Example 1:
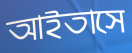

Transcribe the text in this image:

আইতাসে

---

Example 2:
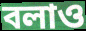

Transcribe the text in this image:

বলাও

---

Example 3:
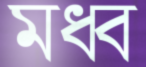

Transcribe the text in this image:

মধ্ব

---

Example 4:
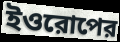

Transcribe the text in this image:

ইওরোপের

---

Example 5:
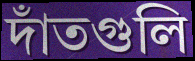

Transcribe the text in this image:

দাঁতগুলি